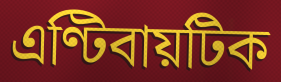
এণ্টিবায়টিক